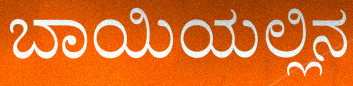
ಬಾಯಿಯಲ್ಲಿನ